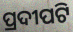
ପ୍ରଦୀପଟି